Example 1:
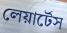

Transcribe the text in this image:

লেয়ার্টেস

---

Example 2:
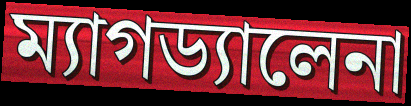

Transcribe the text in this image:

ম্যাগড্যালেনা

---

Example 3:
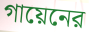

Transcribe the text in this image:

গায়েনের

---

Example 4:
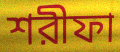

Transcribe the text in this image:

শরীফা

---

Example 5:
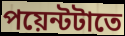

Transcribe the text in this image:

পয়েন্টটাতে